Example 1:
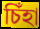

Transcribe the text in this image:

চিঁহা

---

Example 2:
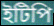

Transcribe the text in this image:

ইটিপি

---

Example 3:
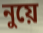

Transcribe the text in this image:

নুয়ে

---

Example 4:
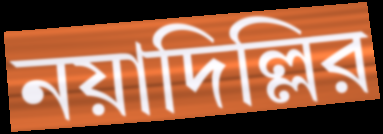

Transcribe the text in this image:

নয়াদিল্লির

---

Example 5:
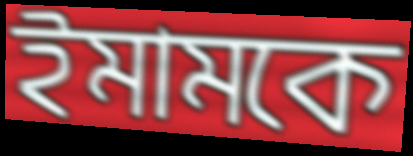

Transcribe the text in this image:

ইমামকে